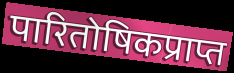
पारितोषिकप्राप्त